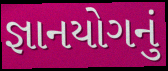
જ્ઞાનયોગનું